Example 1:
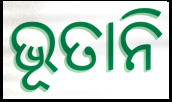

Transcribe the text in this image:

ଭୂତାନି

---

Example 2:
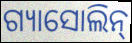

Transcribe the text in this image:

ଗ୍ୟାସୋଲିନ୍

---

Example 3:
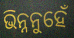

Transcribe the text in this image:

ଭିନ୍ନନୁହେଁ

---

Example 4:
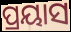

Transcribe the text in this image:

ପ୍ରୟାସ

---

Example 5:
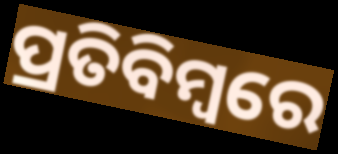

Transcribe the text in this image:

ପ୍ରତିବିମ୍ବରେ